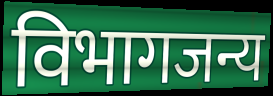
विभागजन्य